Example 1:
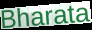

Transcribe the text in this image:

Bharata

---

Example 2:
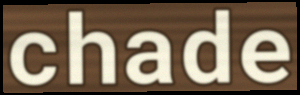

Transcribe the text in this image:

chade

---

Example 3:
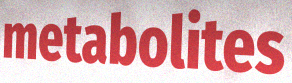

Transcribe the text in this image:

metabolites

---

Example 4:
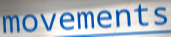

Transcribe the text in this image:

movements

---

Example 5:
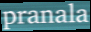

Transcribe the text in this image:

pranala